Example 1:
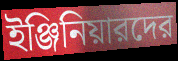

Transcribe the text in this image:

ইঞ্জিনিয়ারদের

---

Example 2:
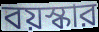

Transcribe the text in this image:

বয়স্কার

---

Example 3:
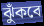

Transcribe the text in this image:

ঝুঁকবে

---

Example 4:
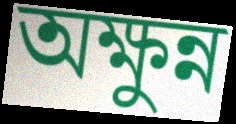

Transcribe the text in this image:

অক্ষুন্ন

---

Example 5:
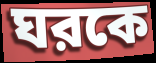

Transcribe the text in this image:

ঘরকে